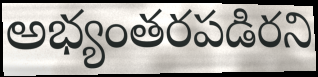
అభ్యంతరపడిరని